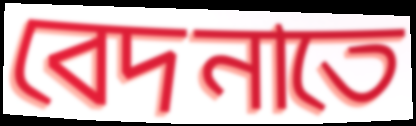
বেদনাতে